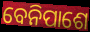
ବେନିପାଶେ